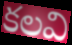
కలవి